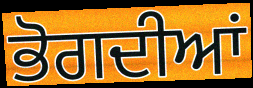
ਭੋਗਦੀਆਂ